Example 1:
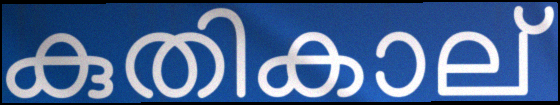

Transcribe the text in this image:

കുതികാല്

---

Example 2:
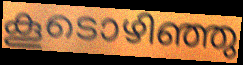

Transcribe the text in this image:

കൂടൊഴിഞ്ഞു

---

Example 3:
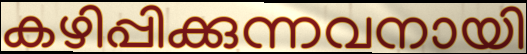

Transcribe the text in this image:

കഴിപ്പിക്കുന്നവനായി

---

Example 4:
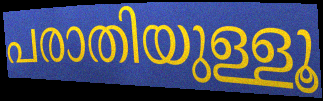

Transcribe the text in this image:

പരാതിയുള്ളൂ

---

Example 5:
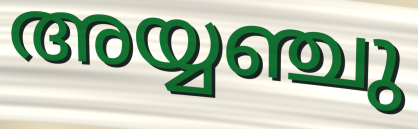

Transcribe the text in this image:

അയ്യഞ്ചു